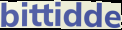
bittidde